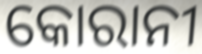
କୋରାନୀ